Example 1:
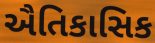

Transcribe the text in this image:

ઐતિકાસિક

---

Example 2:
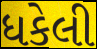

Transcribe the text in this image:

ધકેલી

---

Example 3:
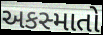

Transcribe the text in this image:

અકસ્માતો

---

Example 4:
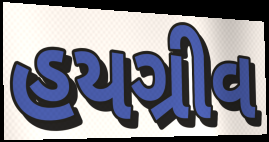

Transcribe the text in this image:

હયગ્રીવ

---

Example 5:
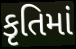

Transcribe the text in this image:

કૃતિમાં